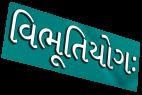
વિભૂતિયોગઃ